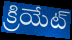
క్రియేట్